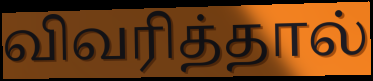
விவரித்தால்